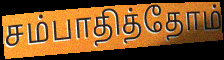
சம்பாதித்தோம்